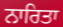
ਨਾਰਿਤਾ